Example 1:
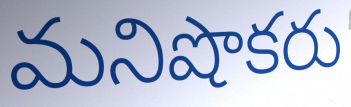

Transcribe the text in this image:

మనిషొకరు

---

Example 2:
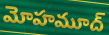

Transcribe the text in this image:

మోహమూద్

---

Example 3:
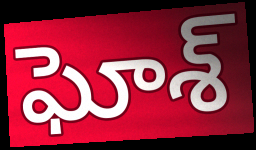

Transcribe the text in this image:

ఘోశ్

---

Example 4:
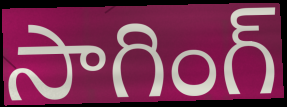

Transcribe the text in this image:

సాగింగ్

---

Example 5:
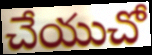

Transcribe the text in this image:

చేయుచో